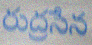
రుద్రసేన